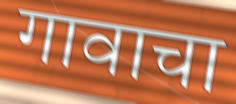
गावाचा